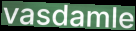
vasdamle